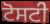
ਟੋਸਟੀ